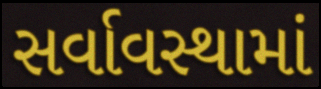
સર્વાવસ્થામાં